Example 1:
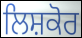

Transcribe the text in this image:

ਲਿਸ਼ਕੋਰ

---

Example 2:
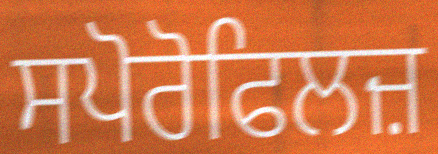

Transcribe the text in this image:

ਸਪੋਰੋਫਿਲਜ਼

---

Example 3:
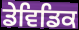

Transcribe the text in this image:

ਡੇਵਿਡਿਕ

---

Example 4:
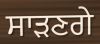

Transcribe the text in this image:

ਸਾੜਣਗੇ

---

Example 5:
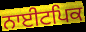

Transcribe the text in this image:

ਨਾਈਟਪਿਕ